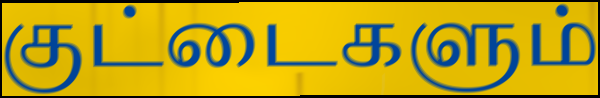
குட்டைகளும்